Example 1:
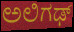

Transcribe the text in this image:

ಅಲಿಗಢ್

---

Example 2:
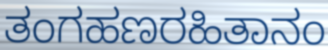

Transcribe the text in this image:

ತಂಗಹಣರಹಿತಾನಂ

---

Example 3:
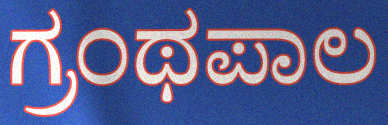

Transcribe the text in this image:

ಗ್ರಂಥಪಾಲ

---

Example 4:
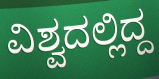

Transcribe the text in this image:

ವಿಶ್ವದಲ್ಲಿದ್ದ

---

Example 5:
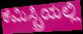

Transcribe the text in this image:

ಕೆಮಿಸ್ಟ್ರಿಯಲ್ಲಿ